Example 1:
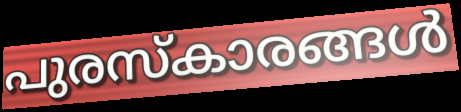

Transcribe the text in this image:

പുരസ്കാരങ്ങൾ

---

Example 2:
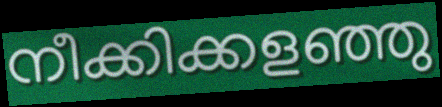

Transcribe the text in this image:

നീക്കിക്കളഞ്ഞു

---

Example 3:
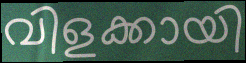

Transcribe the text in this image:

വിളക്കായി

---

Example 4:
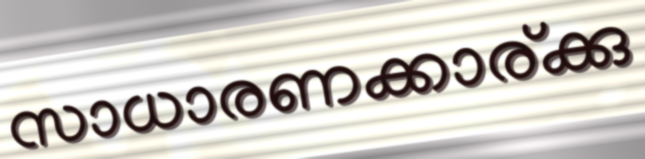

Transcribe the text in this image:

സാധാരണക്കാര്ക്കു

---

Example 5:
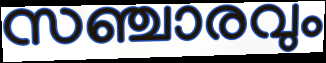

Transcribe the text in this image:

സഞ്ചാരവും